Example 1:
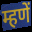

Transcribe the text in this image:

म्हणें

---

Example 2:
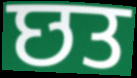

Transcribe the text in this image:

छउ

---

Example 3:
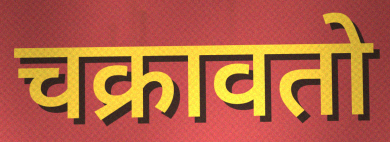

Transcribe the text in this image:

चक्रावतो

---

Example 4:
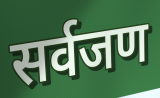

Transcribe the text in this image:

सर्वजण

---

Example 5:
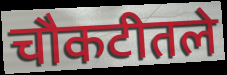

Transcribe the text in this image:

चौकटीतले